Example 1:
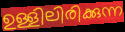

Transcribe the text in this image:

ഉള്ളിലിരിക്കുന്ന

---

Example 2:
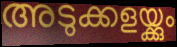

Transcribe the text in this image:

അടുക്കളയ്ക്കും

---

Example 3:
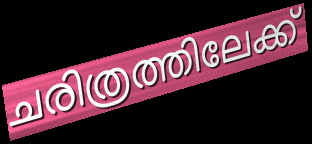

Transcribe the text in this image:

ചരിത്രത്തിലേക്ക്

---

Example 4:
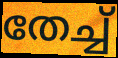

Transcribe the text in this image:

തേച്ച്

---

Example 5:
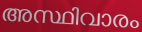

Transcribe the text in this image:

അസ്ഥിവാരം